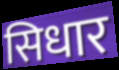
सिधार